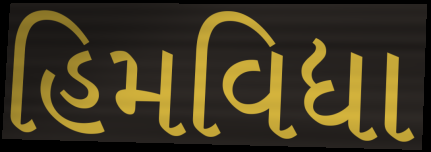
હિમવિદ્યા